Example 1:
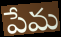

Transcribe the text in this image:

పేమ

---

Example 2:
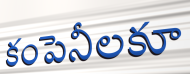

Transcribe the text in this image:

కంపెనీలకూ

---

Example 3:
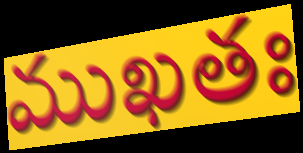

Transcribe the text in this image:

ముఖతః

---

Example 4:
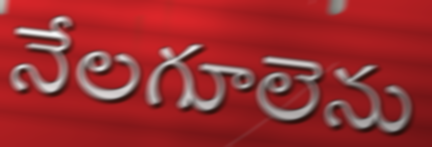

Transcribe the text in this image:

నేలగూలెను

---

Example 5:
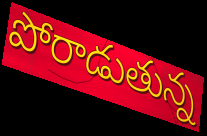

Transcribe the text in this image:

పోరాడుతున్న